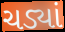
ચડ્યાં